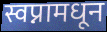
स्वप्नामधून